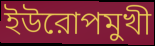
ইউরোপমুখী